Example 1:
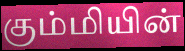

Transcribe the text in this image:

கும்மியின்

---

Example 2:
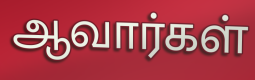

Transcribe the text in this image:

ஆவார்கள்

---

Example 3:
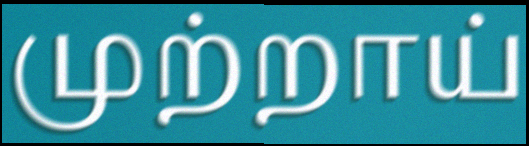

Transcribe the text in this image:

முற்றாய்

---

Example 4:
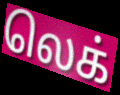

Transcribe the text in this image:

லெக்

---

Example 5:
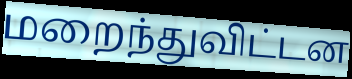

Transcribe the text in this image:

மறைந்துவிட்டன